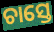
ଚାସ୍ତେ